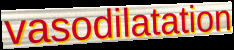
vasodilatation